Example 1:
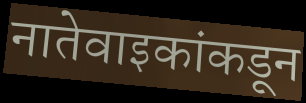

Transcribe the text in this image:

नातेवाइकांकडून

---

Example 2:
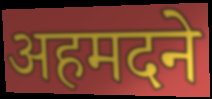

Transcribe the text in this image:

अहमदने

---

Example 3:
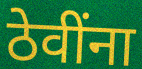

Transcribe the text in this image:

ठेवींना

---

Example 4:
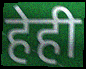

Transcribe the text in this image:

हेही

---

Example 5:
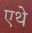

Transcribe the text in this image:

एथे